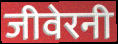
जीवेरनी